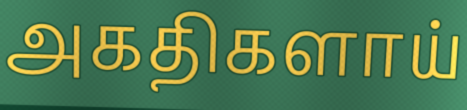
அகதிகளாய்